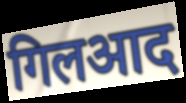
गिलआद